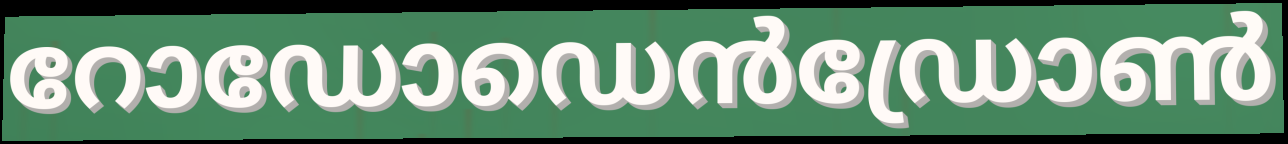
റോഡോഡെൻഡ്രോൺ